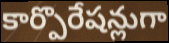
కార్పొరేషన్లుగా